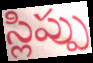
స్లిప్పు